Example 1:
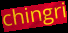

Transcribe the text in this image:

chingri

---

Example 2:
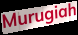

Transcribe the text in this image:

Murugiah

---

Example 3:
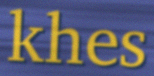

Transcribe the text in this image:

khes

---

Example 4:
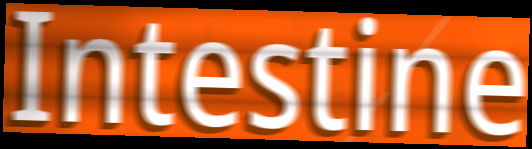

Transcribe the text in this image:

Intestine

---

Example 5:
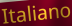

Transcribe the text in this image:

Italiano